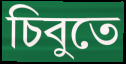
চিবুতে